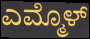
ಎಮ್ಮೊಳ್